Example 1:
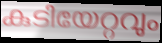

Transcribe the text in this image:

കുടിയേറ്റവും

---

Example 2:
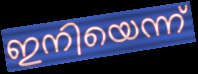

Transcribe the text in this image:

ഇനിയെന്ന്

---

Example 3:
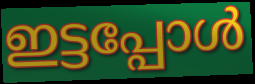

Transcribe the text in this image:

ഇട്ടപ്പോൾ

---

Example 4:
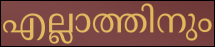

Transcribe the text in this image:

എല്ലാത്തിനും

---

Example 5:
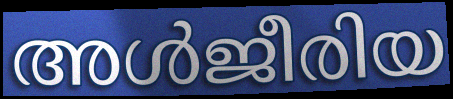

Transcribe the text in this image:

അൾജീരിയ